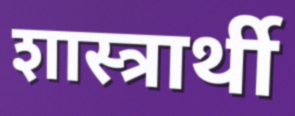
शास्त्रार्थी